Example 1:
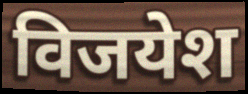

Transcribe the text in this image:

विजयेश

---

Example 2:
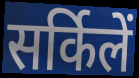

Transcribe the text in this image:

सर्किलें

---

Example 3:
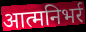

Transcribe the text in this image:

आत्मनिभर्र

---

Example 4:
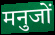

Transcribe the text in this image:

मनुजों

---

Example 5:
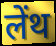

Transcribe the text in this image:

लेंथ